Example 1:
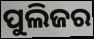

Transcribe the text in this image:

ପୁଲିଜର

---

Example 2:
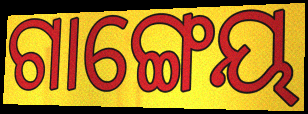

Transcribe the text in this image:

ଗାଙ୍ଗେୟ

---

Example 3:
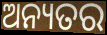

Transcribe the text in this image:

ଅନ୍ୟତର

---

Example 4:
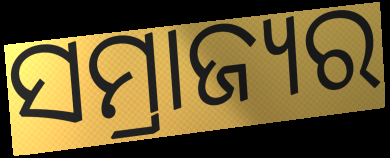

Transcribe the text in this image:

ସମ୍ରାଜ୍ୟର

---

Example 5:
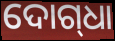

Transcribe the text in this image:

ଦୋଗ୍‌ଧା